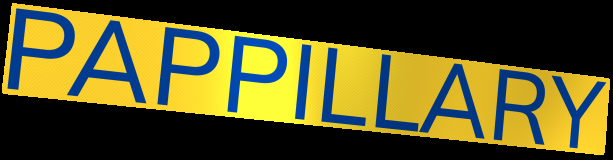
PAPPILLARY